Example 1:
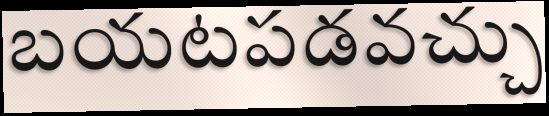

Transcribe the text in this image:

బయటపడవచ్చు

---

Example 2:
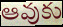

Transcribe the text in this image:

ఆవుకు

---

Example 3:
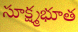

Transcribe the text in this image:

సూక్ష్మభూత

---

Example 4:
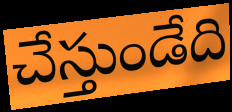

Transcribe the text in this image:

చేస్తుండేది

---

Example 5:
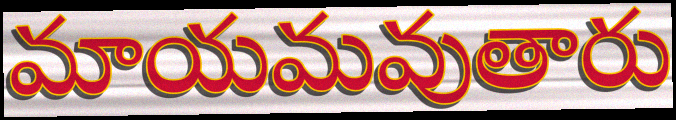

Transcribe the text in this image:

మాయమవుతారు